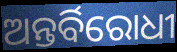
ଅନ୍ତର୍ବିରୋଧୀ